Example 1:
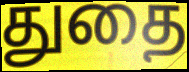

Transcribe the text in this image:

துதை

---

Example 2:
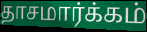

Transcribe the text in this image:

தாசமார்க்கம்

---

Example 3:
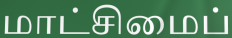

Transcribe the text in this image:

மாட்சிமைப்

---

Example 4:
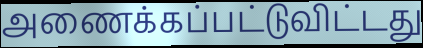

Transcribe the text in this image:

அணைக்கப்பட்டுவிட்டது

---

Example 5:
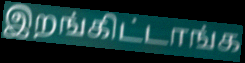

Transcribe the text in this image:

இறங்கிட்டாங்க